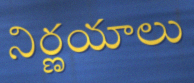
నిర్ణయాలు